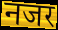
नजर